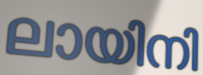
ലായിനി